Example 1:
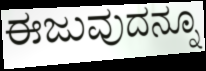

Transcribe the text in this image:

ಈಜುವುದನ್ನೂ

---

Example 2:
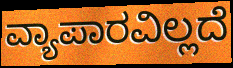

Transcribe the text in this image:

ವ್ಯಾಪಾರವಿಲ್ಲದೆ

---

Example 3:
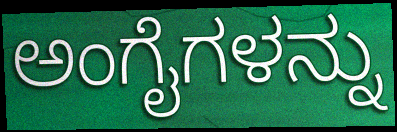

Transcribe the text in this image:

ಅಂಗೈಗಳನ್ನು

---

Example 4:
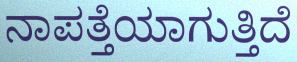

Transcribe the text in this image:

ನಾಪತ್ತೆಯಾಗುತ್ತಿದೆ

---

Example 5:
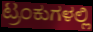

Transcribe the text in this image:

ಟ್ರಂಕುಗಳಲ್ಲಿ